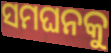
ସମଘନକୁ